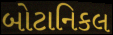
બોટાનિકલ